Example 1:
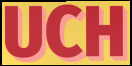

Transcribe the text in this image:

UCH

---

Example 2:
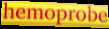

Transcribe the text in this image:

hemoprobe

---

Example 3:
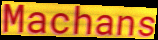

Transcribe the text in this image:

Machans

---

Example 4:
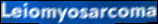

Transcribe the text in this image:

Leiomyosarcoma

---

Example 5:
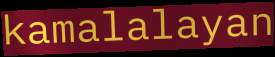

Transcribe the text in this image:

kamalalayan